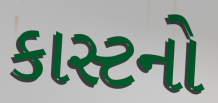
કાસ્ટનો